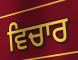
ਵਿਚਾਰ